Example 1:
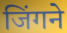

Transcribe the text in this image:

जिंगने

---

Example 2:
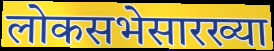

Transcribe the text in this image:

लोकसभेसारख्या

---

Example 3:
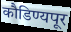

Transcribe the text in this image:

कौडिण्यपूर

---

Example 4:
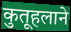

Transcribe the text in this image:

कुतूहलाने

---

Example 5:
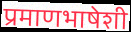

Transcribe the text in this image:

प्रमाणभाषेशी